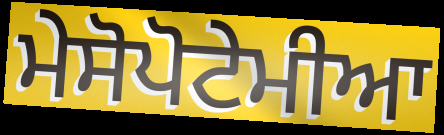
ਮੇਸੋਪੋਟੇਮੀਆ